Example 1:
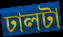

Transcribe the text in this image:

ঢালটা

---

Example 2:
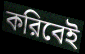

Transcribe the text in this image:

করিবেই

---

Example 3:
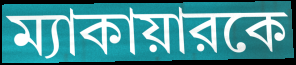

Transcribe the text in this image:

ম্যাকায়ারকে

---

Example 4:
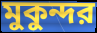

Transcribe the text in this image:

মুকুন্দর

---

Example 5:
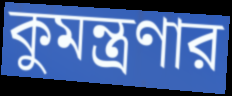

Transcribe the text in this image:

কুমন্ত্রণার